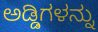
ಅಡ್ಡಿಗಳನ್ನು